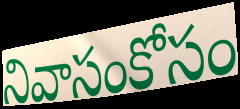
నివాసంకోసం